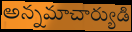
అన్నమాచార్యుడి